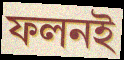
ফলনই